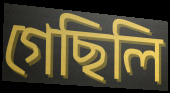
গেছিলি